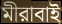
মীরাবাই